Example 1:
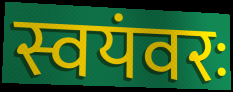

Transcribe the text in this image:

स्वयंवरः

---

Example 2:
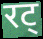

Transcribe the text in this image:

रट्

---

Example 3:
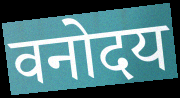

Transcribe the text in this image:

वनोदय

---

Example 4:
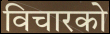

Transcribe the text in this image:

विचारको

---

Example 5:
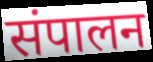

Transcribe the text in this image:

संपालन